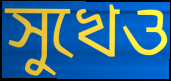
সুখেও